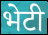
भेटी